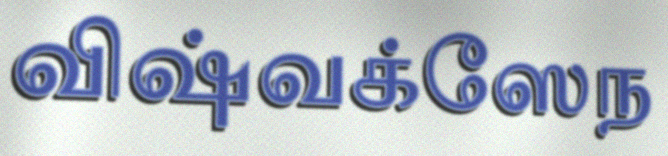
விஷ்வக்ஸேந